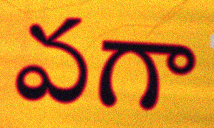
వగా